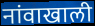
नांवाखाली